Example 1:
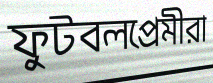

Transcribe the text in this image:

ফুটবলপ্রেমীরা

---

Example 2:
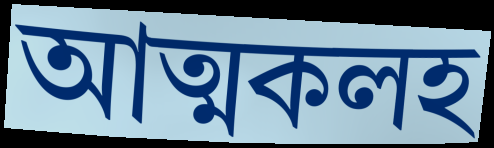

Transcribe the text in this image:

আত্মকলহ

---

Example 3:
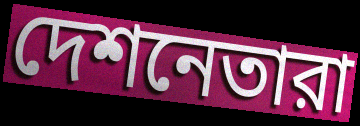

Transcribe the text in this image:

দেশনেতারা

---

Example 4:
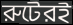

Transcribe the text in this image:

রুটেরই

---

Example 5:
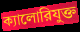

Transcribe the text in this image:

ক্যালোরিযুক্ত